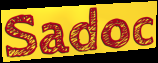
Sadoc